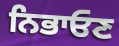
ਨਿਭਾਓਣ